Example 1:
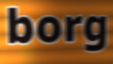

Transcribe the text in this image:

borg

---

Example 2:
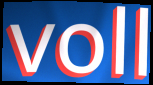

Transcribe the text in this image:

voll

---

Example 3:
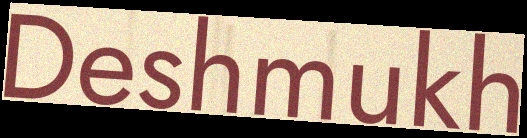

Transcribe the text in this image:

Deshmukh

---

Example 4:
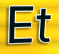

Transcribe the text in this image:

Et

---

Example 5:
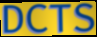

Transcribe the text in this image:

DCTS